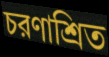
চরণাশ্রিত